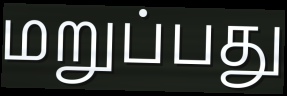
மறுப்பது